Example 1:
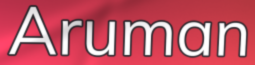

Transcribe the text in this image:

Aruman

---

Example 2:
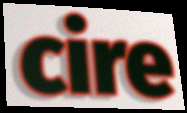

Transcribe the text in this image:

cire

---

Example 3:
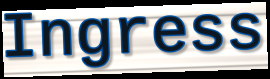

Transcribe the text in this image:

Ingress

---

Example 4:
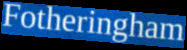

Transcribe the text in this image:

Fotheringham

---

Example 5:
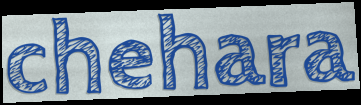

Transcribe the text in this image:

chehara